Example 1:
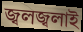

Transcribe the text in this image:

জ্বলজ্বলাই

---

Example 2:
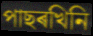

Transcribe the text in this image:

পাছৰখিনি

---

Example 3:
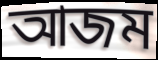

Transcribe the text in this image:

আজম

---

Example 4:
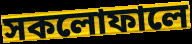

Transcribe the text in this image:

সকলোফালে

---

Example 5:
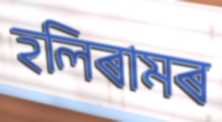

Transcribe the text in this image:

হলিৰামৰ